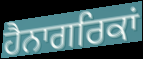
ਹੈਨਾਗਰਿਕਾਂ